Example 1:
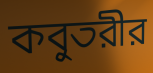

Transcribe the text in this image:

কবুতরীর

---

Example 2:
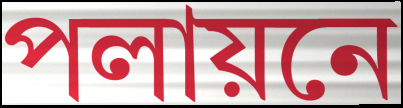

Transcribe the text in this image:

পলায়নে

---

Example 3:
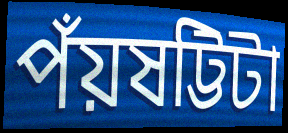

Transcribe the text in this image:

পঁয়ষট্টিটা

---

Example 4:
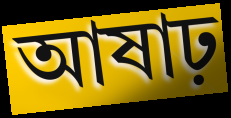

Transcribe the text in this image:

আষাঢ়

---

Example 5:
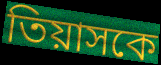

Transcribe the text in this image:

তিয়াসকে